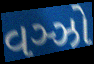
વઞ્ઝો